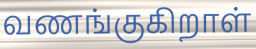
வணங்குகிறாள்